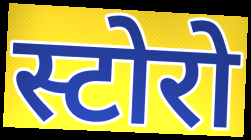
स्टोरो